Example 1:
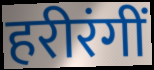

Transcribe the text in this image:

हरीरंगीं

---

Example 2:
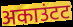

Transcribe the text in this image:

अकाउंटट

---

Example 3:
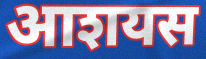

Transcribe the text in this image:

आशयस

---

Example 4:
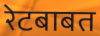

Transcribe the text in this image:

रेटबाबत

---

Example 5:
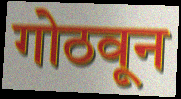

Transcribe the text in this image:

गोठवून